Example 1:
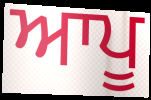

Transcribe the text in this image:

ਆਪੂ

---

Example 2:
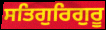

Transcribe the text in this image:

ਸਤਿਗੁਰਿਗੁਰੂ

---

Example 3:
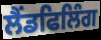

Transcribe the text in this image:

ਲੈਂਡਫਿਲਿੰਗ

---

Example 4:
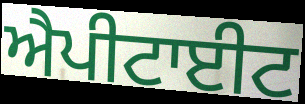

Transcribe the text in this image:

ਐਪੀਟਾਈਟ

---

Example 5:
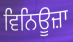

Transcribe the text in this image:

ਵਿਨਿਊਜ਼ਾ